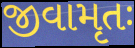
જીવામૃતઃ